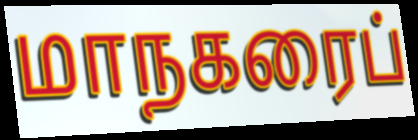
மாநகரைப்